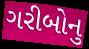
ગરીબોનુ